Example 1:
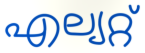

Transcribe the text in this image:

എല്യറ്റ്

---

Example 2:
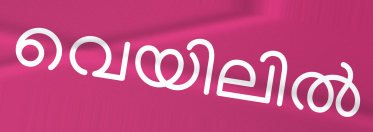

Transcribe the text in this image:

വെയിലിൽ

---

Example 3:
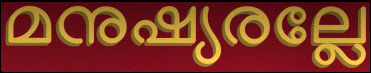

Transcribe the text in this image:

മനുഷ്യരല്ലേ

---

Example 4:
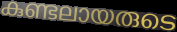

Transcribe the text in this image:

കുണ്ടലായരുടെ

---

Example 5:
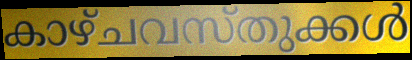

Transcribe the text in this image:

കാഴ്ചവസ്തുക്കൾ